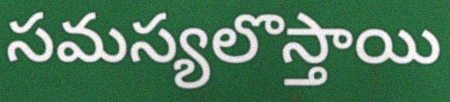
సమస్యలొస్తాయి